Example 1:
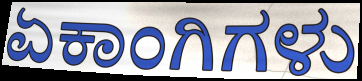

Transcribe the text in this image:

ಏಕಾಂಗಿಗಳು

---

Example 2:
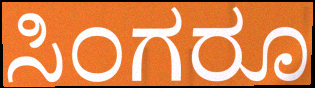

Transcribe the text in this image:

ಸಿಂಗರೂ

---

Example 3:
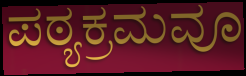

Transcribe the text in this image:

ಪಠ್ಯಕ್ರಮವೂ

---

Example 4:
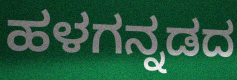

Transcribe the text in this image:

ಹಳಗನ್ನಡದ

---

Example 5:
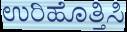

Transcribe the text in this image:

ಉರಿಹೊತ್ತಿಸಿ